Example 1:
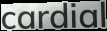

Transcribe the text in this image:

cardial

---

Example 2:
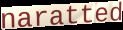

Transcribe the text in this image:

naratted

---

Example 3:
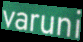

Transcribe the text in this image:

varuni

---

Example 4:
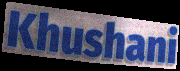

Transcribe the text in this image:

Khushani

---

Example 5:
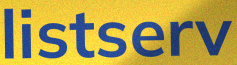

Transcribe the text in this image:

listserv